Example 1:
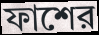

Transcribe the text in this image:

ফাশের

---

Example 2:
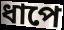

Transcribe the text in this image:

ধাপে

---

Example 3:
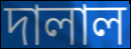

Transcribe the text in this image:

দালাল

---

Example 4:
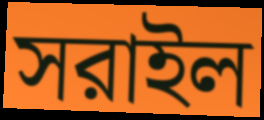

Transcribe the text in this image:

সরাইল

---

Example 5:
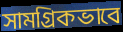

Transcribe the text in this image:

সামগ্রিকভাবে